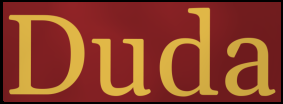
Duda